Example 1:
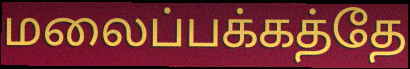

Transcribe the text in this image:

மலைப்பக்கத்தே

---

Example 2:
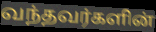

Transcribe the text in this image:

வந்தவர்களின்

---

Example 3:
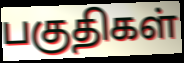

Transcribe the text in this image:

பகுதிகள்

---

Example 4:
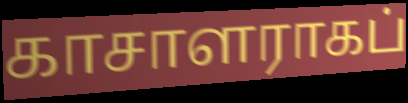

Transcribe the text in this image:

காசாளராகப்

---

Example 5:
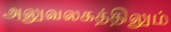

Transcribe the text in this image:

அலுவலகத்திலும்